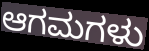
ಆಗಮಗಳು